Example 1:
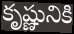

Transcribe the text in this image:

కృష్ణునికి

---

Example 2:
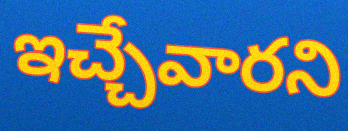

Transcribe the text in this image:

ఇచ్చేవారని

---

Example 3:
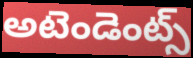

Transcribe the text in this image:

అటెండెంట్స్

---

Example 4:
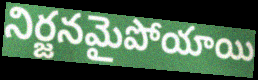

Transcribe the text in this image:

నిర్జనమైపోయాయి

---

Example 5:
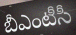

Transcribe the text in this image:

బీఎంటీసీ